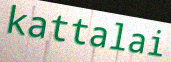
kattalai